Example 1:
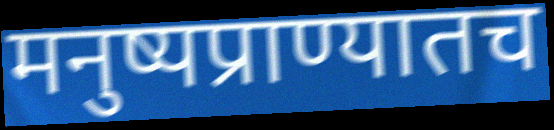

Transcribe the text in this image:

मनुष्यप्राण्यातच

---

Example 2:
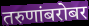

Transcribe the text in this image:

तरुणांबरोबर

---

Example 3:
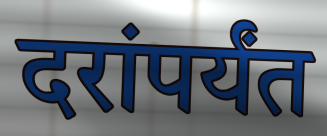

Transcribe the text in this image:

दरांपर्यंत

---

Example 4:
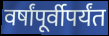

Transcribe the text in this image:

वर्षांपूर्वीपर्यंत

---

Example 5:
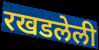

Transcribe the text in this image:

रखडलेली